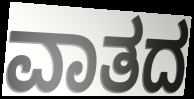
ವಾತದ